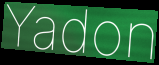
Yadon